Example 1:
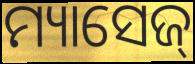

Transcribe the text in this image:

ମ୍ୟାସେଜ୍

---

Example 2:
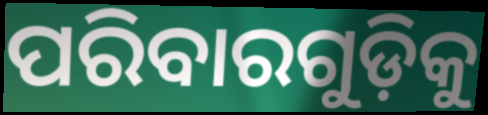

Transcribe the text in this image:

ପରିବାରଗୁଡ଼ିକୁ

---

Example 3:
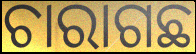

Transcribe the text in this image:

ଚାରାଗଛ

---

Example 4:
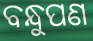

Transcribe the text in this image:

ବନ୍ଧୁପଣ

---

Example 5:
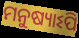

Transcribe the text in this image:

ମନୁଷ୍ୟାଽପି